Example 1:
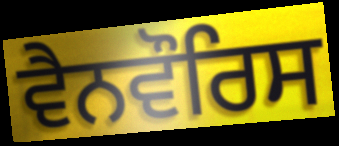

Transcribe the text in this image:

ਵੈਨਵੌਰਿਸ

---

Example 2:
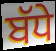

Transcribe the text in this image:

ਬੱਧੇ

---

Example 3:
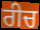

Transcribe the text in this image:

ਰੀਚ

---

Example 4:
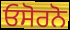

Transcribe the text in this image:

ਓਸੋਰਨੋ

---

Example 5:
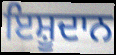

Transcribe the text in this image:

ਇਸ਼ੂਦਾਨ